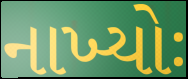
નાખ્યોઃ